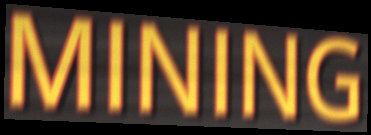
MINING